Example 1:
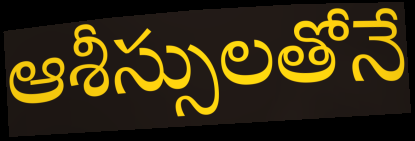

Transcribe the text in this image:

ఆశీస్సులతోనే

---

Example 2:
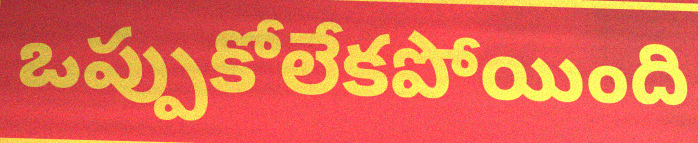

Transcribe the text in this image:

ఒప్పుకోలేకపోయింది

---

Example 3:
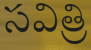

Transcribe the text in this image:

సవిత్రి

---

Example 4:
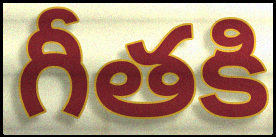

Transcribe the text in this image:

గీతకి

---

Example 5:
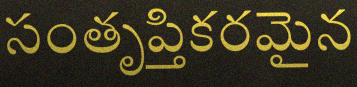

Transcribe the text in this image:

సంతృప్తికరమైన